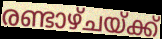
രണ്ടാഴ്ചയ്ക്ക്